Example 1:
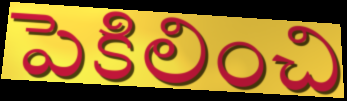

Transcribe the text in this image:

పెకిలించి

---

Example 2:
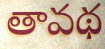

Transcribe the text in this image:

తావథ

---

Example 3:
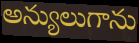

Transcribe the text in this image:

అన్యులుగాను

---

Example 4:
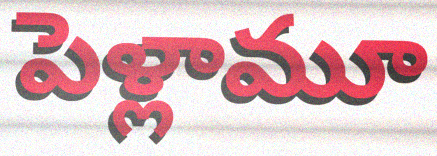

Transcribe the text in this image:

పెళ్లామూ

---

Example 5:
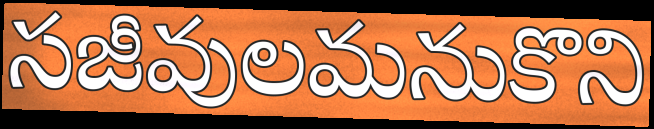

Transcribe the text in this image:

సజీవులమనుకొని